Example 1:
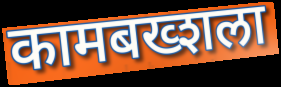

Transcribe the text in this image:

कामबख्शला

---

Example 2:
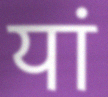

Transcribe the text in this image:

यां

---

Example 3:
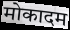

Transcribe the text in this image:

मोकादम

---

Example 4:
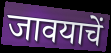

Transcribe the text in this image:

जावयाचें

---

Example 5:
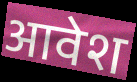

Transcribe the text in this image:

आवेश